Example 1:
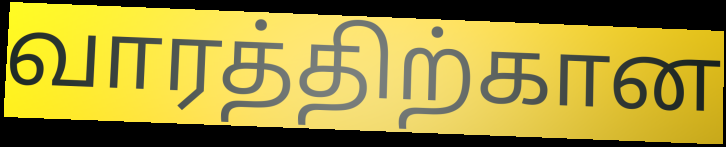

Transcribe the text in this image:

வாரத்திற்கான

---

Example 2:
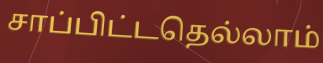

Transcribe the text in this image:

சாப்பிட்டதெல்லாம்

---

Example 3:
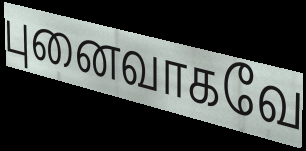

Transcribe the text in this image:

புனைவாகவே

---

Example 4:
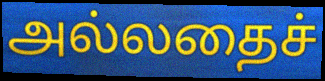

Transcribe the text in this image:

அல்லதைச்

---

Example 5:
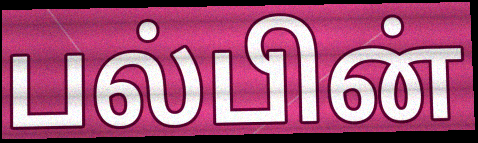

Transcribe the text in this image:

பல்பின்